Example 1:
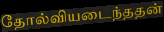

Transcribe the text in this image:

தோல்வியடைந்ததன்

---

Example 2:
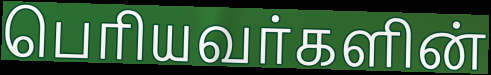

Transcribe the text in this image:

பெரியவர்களின்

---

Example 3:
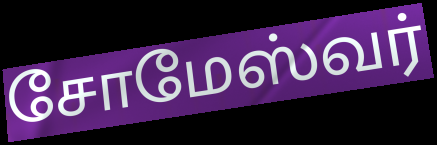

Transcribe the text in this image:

சோமேஸ்வர்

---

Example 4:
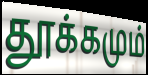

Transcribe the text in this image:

தூக்கமும்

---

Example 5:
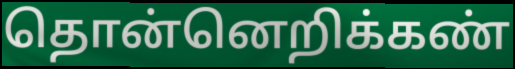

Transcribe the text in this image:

தொன்னெறிக்கண்